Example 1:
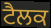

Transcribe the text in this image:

ਟੈਲਕ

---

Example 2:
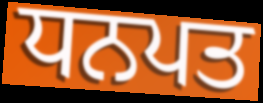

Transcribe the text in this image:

ਧਨਪਤ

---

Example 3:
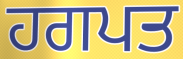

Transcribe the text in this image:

ਹਗਪਤ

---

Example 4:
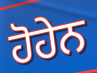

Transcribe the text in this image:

ਹੋਹੇਨ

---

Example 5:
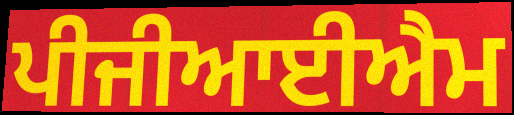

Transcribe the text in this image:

ਪੀਜੀਆਈਐਮ